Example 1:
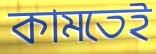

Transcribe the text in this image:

কামতেই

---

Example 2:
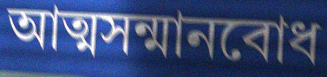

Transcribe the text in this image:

আত্মসন্মানবোধ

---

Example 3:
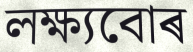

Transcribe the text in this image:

লক্ষ্যবোৰ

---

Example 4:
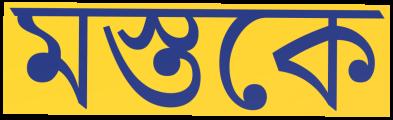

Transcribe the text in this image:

মস্তকে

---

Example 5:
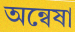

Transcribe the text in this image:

অন্বেষা